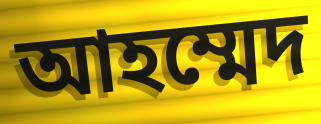
আহম্মেদ